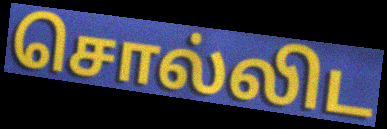
சொல்லிட